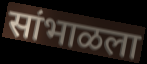
सांभाळला